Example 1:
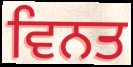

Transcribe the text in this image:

ਵਿਨਤ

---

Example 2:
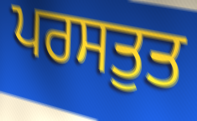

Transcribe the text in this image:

ਪਰਸਤੁਤ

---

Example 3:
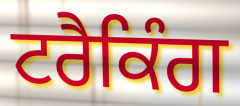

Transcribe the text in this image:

ਟਰੈਕਿੰਗ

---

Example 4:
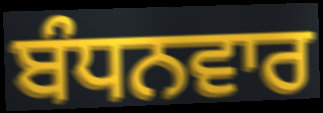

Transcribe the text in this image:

ਬੰਧਨਵਾਰ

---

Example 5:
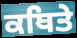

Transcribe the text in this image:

ਕਥਿਤੇ